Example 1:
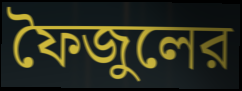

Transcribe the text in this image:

ফৈজুলের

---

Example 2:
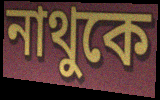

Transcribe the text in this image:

নাথুকে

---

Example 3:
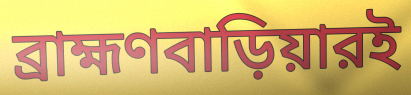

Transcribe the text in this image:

ব্রাহ্মণবাড়িয়ারই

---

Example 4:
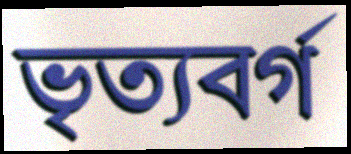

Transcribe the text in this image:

ভৃত্যবর্গ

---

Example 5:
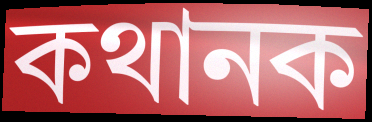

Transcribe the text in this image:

কথানক